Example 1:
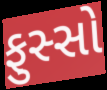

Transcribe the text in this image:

ફુસ્સો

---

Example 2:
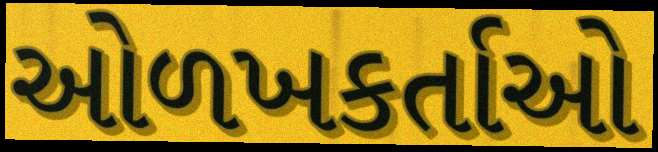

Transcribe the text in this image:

ઓળખકર્તાઓ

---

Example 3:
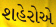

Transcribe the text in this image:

શહેરોએ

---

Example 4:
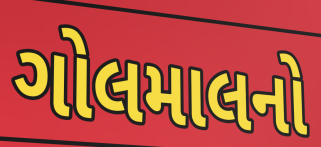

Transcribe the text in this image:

ગોલમાલનો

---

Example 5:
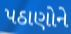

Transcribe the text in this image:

પઠાણોને